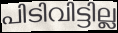
പിടിവിട്ടില്ല